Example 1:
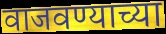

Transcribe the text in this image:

वाजवण्याच्या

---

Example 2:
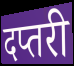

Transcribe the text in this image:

दप्तरी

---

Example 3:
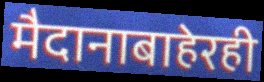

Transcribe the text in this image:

मैदानाबाहेरही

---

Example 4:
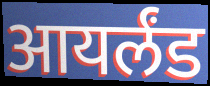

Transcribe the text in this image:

आयर्लंड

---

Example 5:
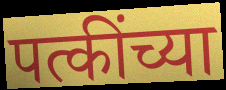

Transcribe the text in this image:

पत्कींच्या